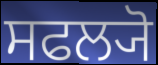
ਸਫਲ੍ਯੋ